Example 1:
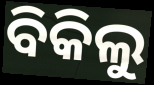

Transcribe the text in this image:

ବିକିଲୁ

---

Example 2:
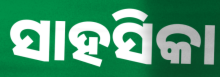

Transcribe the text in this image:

ସାହସିକା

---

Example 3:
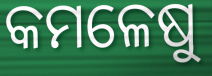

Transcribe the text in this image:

କମଳେଷୁ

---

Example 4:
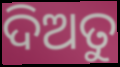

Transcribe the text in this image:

ଦିଅତୁ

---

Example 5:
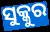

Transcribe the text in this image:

ସୁକ୍କୁର